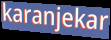
karanjekar